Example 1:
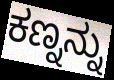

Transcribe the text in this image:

ಕಣ್ನನ್ನು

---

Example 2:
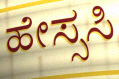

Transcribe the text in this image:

ಹೇಸ್ಸಸಿ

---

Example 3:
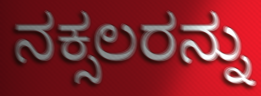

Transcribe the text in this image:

ನಕ್ಸಲರನ್ನು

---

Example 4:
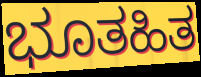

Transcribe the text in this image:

ಭೂತಹಿತ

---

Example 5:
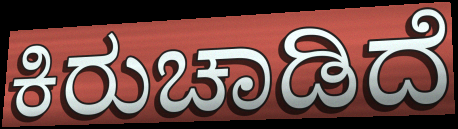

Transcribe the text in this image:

ಕಿರುಚಾಡಿದೆ